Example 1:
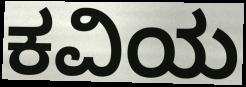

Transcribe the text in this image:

ಕವಿಯ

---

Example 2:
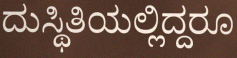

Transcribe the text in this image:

ದುಸ್ಥಿತಿಯಲ್ಲಿದ್ದರೂ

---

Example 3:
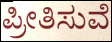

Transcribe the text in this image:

ಪ್ರೀತಿಸುವೆ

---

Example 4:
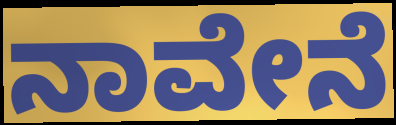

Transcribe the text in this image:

ನಾವೇನೆ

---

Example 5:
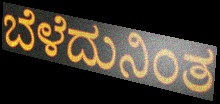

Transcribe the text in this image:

ಬೆಳೆದುನಿಂತ